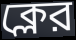
ক্লের